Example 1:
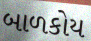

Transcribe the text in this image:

બાળકોય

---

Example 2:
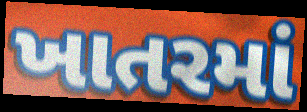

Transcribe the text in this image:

ખાતરમાં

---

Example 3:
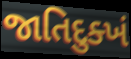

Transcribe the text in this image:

જાતિદુક્ખં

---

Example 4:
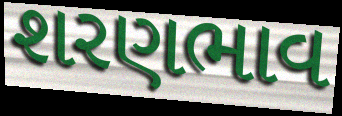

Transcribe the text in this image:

શરણભાવ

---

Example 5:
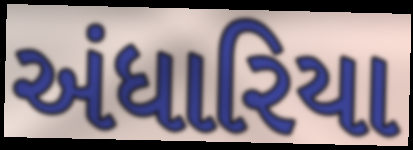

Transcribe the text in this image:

અંધારિયા